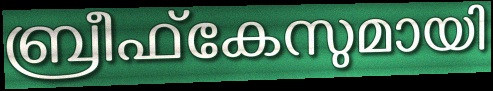
ബ്രീഫ്കേസുമായി